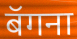
बॅगना